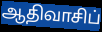
ஆதிவாசிப்